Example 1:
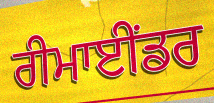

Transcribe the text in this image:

ਰੀਮਾਈਂਡਰ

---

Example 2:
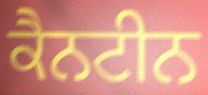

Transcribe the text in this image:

ਕੈਨਟੀਨ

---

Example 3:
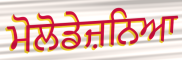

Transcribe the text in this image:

ਮੋਲੋਡੇਜ਼ਨਿਆ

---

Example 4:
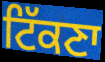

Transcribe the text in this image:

ਟਿੱਕਣਾ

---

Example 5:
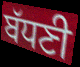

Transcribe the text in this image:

ਬੱਧਣੀ